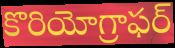
కొరియోగ్రాఫర్